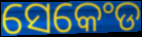
ସେକେଂଡ